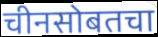
चीनसोबतचा